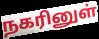
நகரினுள்